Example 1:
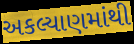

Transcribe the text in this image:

અકલ્યાણમાંથી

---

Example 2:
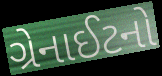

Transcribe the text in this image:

ગ્રેનાઈટનો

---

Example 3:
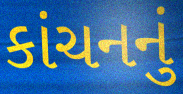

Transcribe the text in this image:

કાંચનનું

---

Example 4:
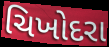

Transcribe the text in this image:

ચિખોદરા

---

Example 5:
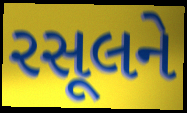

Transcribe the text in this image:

રસૂલને